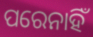
ପରେନାହିଁ